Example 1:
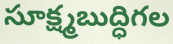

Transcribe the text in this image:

సూక్ష్మబుద్ధిగల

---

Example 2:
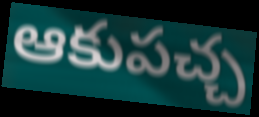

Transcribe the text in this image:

ఆకుపచ్చ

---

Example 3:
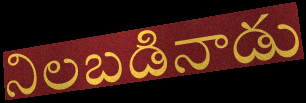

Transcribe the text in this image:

నిలబడినాడు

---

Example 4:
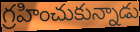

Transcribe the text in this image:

గ్రహించుకున్నాడు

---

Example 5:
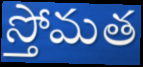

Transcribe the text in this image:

స్తోమత